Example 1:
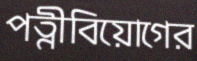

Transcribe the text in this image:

পত্নীবিয়োগের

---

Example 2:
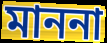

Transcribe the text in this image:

মাননা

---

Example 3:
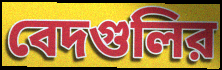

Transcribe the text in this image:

বেদগুলির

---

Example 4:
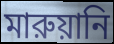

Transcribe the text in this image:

মারুয়ানি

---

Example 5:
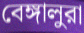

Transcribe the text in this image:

বেঙ্গালুরা